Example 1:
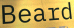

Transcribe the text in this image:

Beard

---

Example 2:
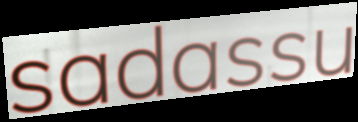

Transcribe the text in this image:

sadassu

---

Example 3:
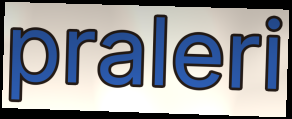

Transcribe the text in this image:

praleri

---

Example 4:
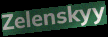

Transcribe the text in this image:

Zelenskyy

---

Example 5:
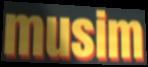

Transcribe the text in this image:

musim